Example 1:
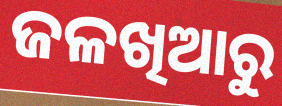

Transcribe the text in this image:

ଜଳଖିଆରୁ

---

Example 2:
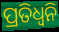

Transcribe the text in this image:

ପ୍ରତିଧ୍ବନି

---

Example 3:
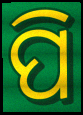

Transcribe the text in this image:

ପି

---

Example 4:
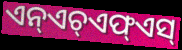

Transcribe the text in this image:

ଏନ୍ଏଚ୍ଏଫ୍ଏସ୍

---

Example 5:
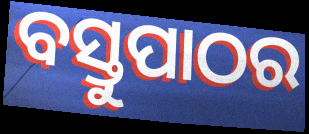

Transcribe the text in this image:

ବସ୍ତୁପାଠର